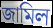
জামিল